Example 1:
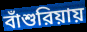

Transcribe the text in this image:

বাঁশুরিয়ায়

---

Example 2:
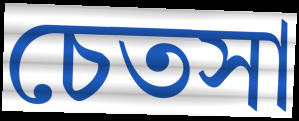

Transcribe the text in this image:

চেতসা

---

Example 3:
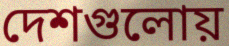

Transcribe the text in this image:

দেশগুলোয়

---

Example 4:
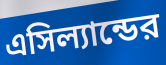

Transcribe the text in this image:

এসিল্যান্ডের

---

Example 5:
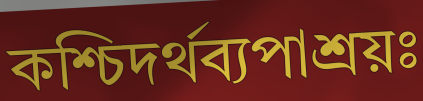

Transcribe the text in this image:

কশ্চিদর্থব্যপাশ্রয়ঃ